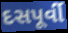
દસપૂર્વી